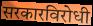
सरकारविरोधी